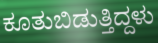
ಕೂತುಬಿಡುತ್ತಿದ್ದಳು